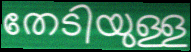
തേടിയുള്ള